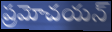
ప్రమోచయన్